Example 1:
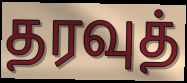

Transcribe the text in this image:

தரவுத்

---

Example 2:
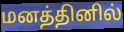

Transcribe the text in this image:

மனத்தினில்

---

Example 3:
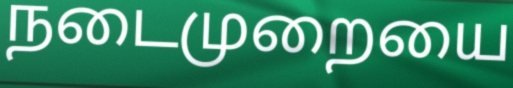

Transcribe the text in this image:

நடைமுறையை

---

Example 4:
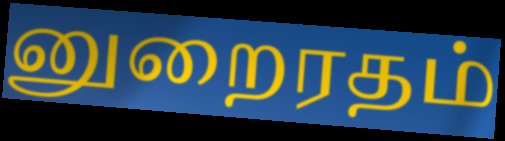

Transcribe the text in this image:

னுறைரதம்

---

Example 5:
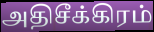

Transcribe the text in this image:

அதிசீக்கிரம்